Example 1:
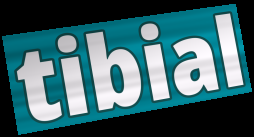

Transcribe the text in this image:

tibial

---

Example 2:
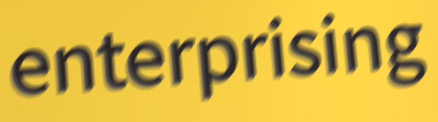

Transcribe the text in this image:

enterprising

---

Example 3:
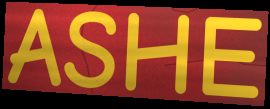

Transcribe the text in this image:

ASHE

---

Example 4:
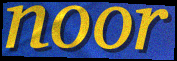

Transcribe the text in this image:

noor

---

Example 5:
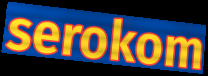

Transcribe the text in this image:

serokom